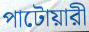
পাটোয়ারী